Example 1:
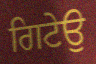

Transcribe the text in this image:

ਗਿਟੇਉ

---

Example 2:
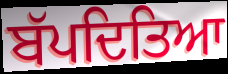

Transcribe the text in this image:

ਬੱਪਦਿਤਿਆ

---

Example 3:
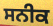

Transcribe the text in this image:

ਸਨੀਕ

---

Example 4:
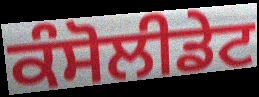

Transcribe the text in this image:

ਕੰਸੋਲੀਡੇਟ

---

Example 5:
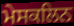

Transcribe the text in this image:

ਮੇਸਕਲਿਨ